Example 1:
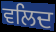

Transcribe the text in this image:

ਵਲਿਦ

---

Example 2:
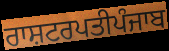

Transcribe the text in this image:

ਰਾਸ਼ਟਰਪਤੀਪੰਜਾਬ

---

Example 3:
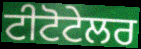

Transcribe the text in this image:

ਟੀਟੋਟੇਲਰ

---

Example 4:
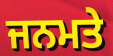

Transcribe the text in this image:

ਜਨਮਤੇ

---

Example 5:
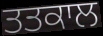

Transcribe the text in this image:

ਤਤਕਾਲ